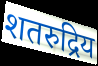
शतरुद्रिय